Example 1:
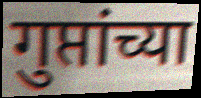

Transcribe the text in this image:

गुप्तांच्या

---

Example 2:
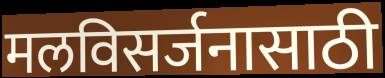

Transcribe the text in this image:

मलविसर्जनासाठी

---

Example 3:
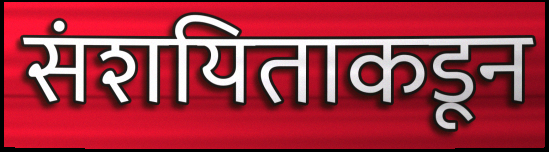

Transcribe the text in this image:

संशयिताकडून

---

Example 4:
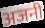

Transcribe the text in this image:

अजनी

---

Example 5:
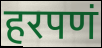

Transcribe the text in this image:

हरपणं